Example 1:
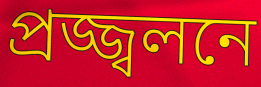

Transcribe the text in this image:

প্রজ্জ্বলনে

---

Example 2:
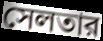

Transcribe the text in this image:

সেলতার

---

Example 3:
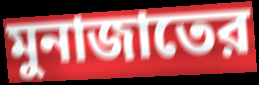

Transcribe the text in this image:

মুনাজাতের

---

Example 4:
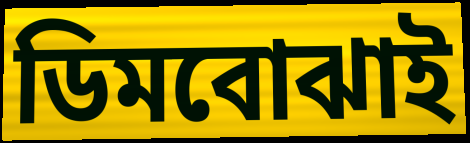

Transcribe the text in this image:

ডিমবোঝাই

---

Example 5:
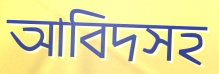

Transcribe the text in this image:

আবিদসহ